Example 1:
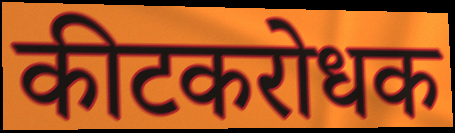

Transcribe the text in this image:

कीटकरोधक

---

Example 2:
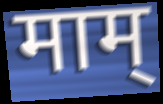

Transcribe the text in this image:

माम्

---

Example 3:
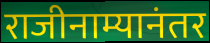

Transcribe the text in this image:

राजीनाम्यानंतर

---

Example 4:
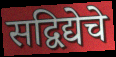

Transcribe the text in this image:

सद्विद्येचे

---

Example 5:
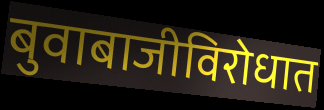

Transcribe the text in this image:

बुवाबाजीविरोधात